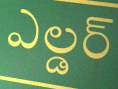
ఎల్డర్